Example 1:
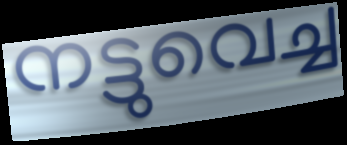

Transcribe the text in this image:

നട്ടുവെച്ച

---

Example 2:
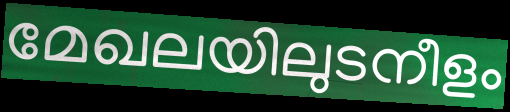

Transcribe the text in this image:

മേഖലയിലുടനീളം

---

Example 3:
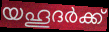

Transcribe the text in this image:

യഹൂദർക്ക്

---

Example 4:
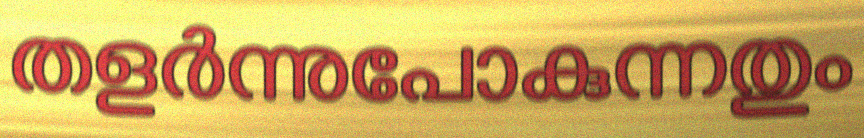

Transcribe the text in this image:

തളർന്നുപോകുന്നതും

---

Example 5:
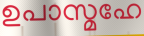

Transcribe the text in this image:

ഉപാസ്മഹേ